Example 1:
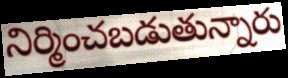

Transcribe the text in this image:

నిర్మించబడుతున్నారు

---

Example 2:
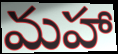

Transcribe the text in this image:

మహా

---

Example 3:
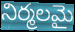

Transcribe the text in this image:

నిర్మలమై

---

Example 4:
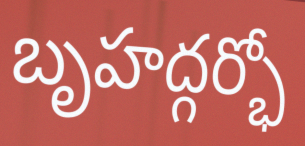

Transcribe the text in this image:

బృహద్గర్భో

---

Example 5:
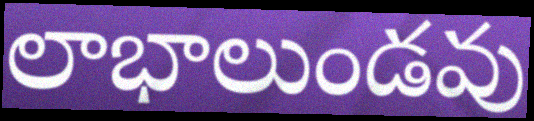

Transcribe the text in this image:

లాభాలుండవు